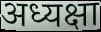
अध्यक्षा